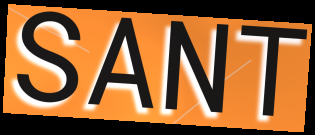
SANT